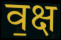
व॒क्ष